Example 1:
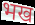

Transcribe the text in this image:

भख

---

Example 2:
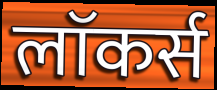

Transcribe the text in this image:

लॉकर्स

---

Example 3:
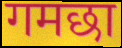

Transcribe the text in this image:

गमछा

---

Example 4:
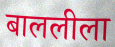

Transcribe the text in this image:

बाललीला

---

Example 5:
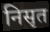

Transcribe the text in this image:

निसृत